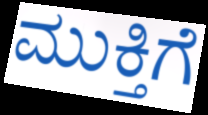
ಮುಕ್ತಿಗೆ